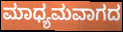
ಮಾಧ್ಯಮವಾಗದ